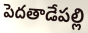
పెదతాడేపల్లి